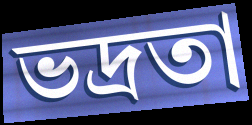
ভদ্ৰতা